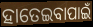
ହାତେଇବାପାଇଁ